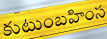
కుటుంబహింస